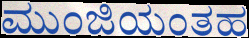
ಮುಂಜಿಯಂತಹ